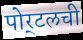
पोर्टलची